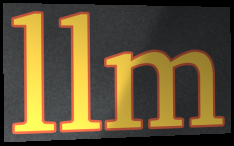
llm